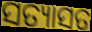
ସତ୍ୟାସତ